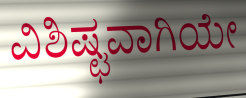
ವಿಶಿಷ್ಟವಾಗಿಯೇ